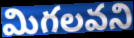
మిగలవని